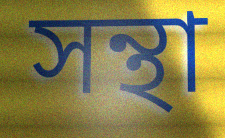
সন্থা